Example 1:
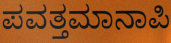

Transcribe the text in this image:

ಪವತ್ತಮಾನಾಪಿ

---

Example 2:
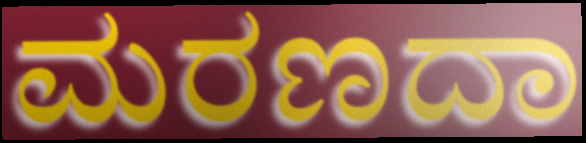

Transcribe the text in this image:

ಮರಣದಾ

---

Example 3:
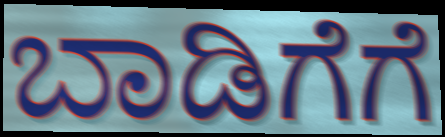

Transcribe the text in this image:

ಬಾಡಿಗೆಗೆ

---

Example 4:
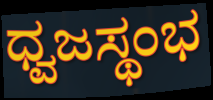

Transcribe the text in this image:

ಧ್ವಜಸ್ಥಂಭ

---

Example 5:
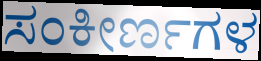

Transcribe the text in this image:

ಸಂಕೀರ್ಣಗಳ